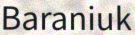
Baraniuk